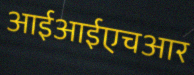
आईआईएचआर